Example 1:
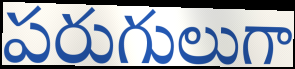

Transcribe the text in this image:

పరుగులుగా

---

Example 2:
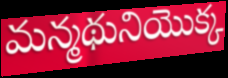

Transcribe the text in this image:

మన్మథునియొక్క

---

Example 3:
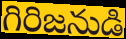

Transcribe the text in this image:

గిరిజనుడి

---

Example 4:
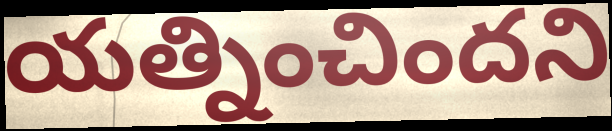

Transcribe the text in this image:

యత్నించిందని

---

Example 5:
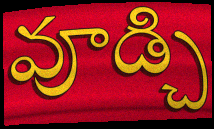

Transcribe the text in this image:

వూడ్చి